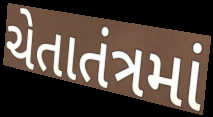
ચેતાતંત્રમાં